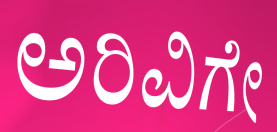
ಅರಿವಿಗೇ